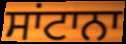
ਸਾਂਟਾਨਾ